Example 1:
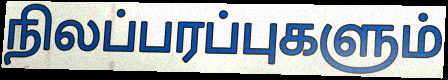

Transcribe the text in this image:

நிலப்பரப்புகளும்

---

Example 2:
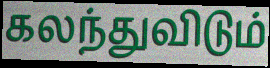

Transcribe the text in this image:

கலந்துவிடும்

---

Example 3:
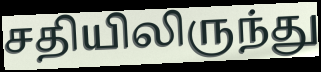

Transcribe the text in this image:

சதியிலிருந்து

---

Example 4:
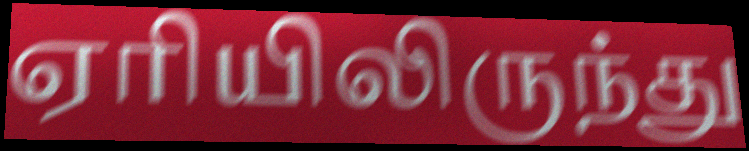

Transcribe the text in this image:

ஏரியிலிருந்து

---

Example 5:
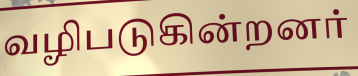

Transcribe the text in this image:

வழிபடுகின்றனர்